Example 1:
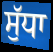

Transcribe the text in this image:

ਸੁੱਧਾ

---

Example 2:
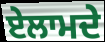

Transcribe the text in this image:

ਏਲਾਮਦੇ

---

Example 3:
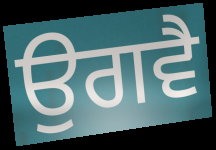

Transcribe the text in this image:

ਉਗਵੈ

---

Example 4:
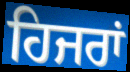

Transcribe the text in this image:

ਹਿਜਰਾਂ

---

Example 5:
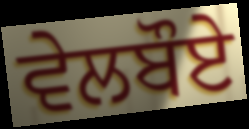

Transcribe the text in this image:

ਵੇਲਬੌਏ